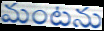
మంటను